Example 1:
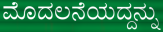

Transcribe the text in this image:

ಮೊದಲನೆಯದ್ದನ್ನು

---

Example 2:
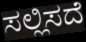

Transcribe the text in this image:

ಸಲ್ಲಿಸದೆ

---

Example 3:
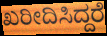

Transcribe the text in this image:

ಖರೀದಿಸಿದ್ದರೆ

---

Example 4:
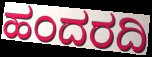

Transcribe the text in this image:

ಹಂದರದಿ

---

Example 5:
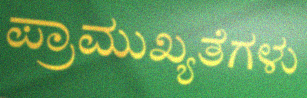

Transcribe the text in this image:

ಪ್ರಾಮುಖ್ಯತೆಗಳು